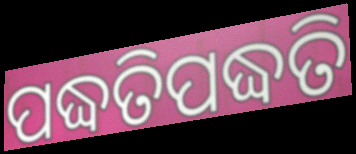
ପଦ୍ଧତିପଦ୍ଧତି